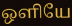
ஒளியே